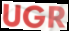
UGR